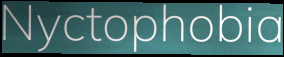
Nyctophobia